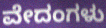
ವೇದಂಗಳು